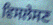
ਵਿਸਲੇਸਣ